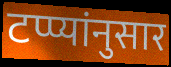
टप्प्यांनुसार